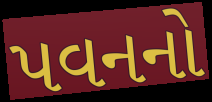
પવનનો